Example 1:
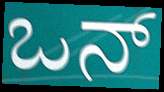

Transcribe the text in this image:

ಒನ್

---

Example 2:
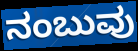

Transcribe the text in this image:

ನಂಬುವು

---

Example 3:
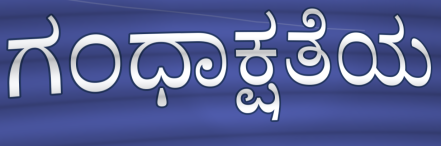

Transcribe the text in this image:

ಗಂಧಾಕ್ಷತೆಯ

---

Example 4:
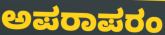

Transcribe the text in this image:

ಅಪರಾಪರಂ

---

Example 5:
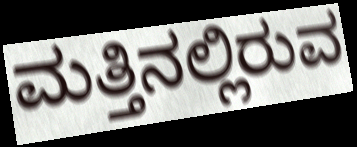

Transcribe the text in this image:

ಮತ್ತಿನಲ್ಲಿರುವ